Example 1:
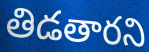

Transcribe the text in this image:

తిడతారని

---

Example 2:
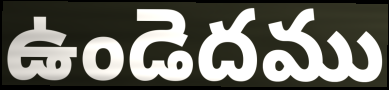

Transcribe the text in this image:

ఉండెదము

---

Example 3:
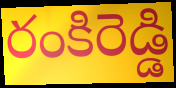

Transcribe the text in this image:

రంకిరెడ్డి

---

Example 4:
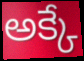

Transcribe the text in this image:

అక్కే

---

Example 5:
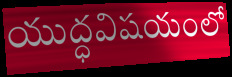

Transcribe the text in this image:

యుద్ధవిషయంలో